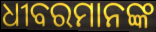
ଧୀବରମାନଙ୍କ